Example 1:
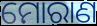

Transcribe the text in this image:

ମୋରାଣ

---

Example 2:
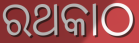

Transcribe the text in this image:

ରଥକାଠ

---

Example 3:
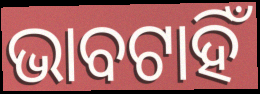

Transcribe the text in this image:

ଭାବଟାହିଁ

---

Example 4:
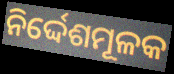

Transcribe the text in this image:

ନିର୍ଦ୍ଦେଶମୂଳକ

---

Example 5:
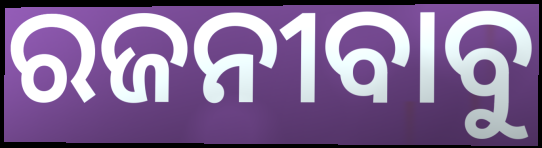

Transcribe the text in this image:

ରଜନୀବାବୁ